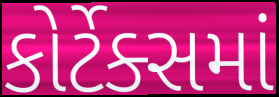
કોર્ટેક્સમાં